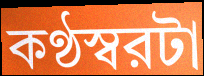
কণ্ঠস্বরটা